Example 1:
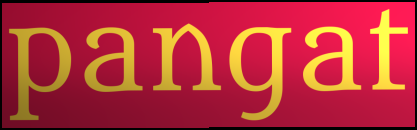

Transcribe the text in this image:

pangat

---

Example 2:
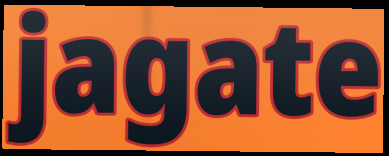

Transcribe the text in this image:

jagate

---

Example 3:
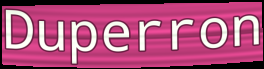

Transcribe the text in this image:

Duperron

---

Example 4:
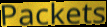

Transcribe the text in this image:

Packets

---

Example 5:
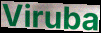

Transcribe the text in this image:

Viruba